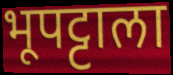
भूपट्टाला